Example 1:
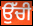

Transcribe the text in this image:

ਉੱਚੀ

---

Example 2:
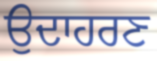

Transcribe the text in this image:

ਉਦਾਹਰਣ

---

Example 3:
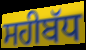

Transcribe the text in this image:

ਸਹੀਬੱਧ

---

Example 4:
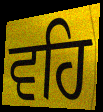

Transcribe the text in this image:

ਵਹਿ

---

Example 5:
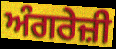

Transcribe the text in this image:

ਅੰਗਰੇਜ਼ੀ